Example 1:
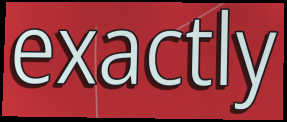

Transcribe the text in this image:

exactly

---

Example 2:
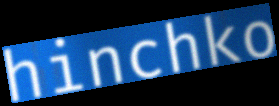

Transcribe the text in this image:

hinchko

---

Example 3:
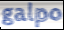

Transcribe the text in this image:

galpo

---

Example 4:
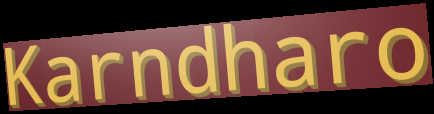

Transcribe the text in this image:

Karndharo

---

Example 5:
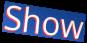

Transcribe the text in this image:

Show